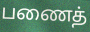
பணைத்